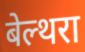
बेल्थरा